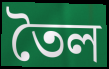
তৈল